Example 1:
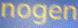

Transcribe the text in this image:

nogen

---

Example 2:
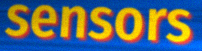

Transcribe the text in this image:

sensors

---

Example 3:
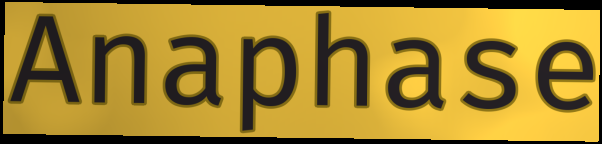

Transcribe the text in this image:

Anaphase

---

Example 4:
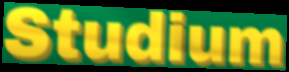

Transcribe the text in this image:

Studium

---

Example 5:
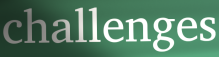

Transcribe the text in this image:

challenges